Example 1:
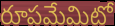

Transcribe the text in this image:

రూపమేమిటో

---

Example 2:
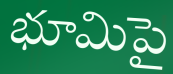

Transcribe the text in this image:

భూమిపై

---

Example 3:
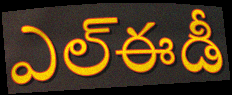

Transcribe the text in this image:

ఎల్ఈడీ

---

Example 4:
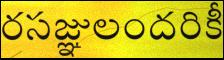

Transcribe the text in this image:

రసజ్ఞులందరికీ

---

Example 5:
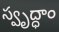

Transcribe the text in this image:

స్వృద్ధాం